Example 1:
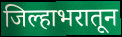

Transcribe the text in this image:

जिल्हाभरातून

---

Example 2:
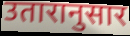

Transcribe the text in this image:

उतारानुसार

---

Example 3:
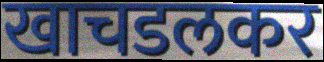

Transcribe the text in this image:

खाचडलकर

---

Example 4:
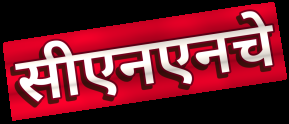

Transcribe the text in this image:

सीएनएनचे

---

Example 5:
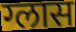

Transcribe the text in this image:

ग्लास